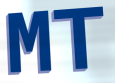
MT